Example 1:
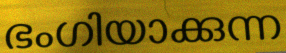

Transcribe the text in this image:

ഭംഗിയാക്കുന്ന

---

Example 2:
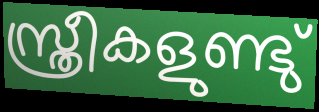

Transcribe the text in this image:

സ്ത്രീകളുണ്ടു്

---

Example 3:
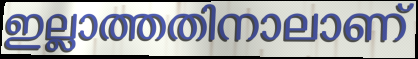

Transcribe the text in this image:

ഇല്ലാത്തതിനാലാണ്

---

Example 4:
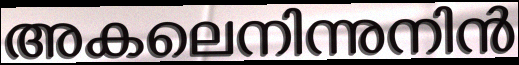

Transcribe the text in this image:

അകലെനിന്നുനിൻ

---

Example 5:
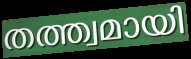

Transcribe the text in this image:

തത്ത്വമായി